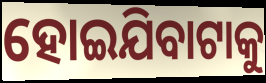
ହୋଇଯିବାଟାକୁ